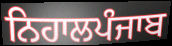
ਨਿਹਾਲਪੰਜਾਬ